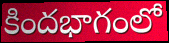
కిందభాగంలో